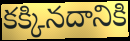
కక్కినదానికి